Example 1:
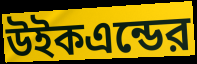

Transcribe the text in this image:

উইকএন্ডের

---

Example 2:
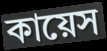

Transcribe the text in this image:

কায়েস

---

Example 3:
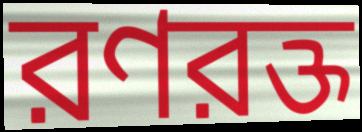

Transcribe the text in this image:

রণরক্ত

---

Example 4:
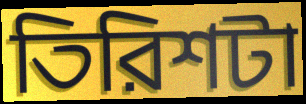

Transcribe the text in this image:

তিরিশটা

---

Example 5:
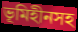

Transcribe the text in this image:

ভূমিহীনসহ